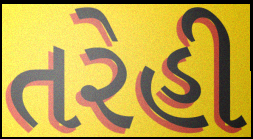
તરેહી